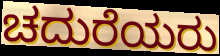
ಚದುರೆಯರು